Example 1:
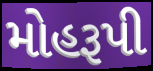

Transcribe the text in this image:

મોહરૂપી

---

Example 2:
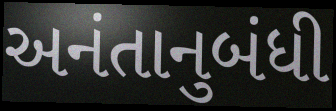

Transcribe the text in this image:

અનંતાનુબંધી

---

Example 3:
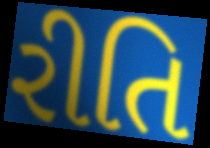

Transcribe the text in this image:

રીતિ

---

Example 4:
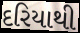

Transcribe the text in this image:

દરિયાથી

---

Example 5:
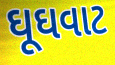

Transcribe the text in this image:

ઘૂઘવાટ